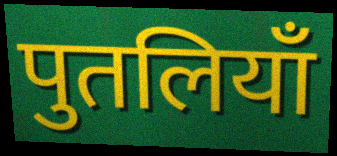
पुतलियाँ